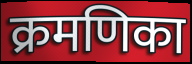
क्रमणिका